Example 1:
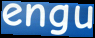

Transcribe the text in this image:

engu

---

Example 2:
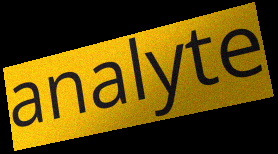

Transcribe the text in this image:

analyte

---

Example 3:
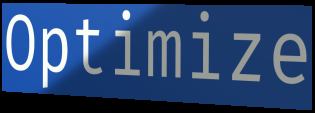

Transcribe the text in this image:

Optimize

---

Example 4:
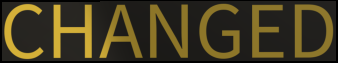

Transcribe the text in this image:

CHANGED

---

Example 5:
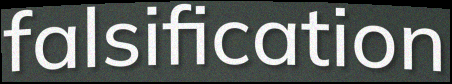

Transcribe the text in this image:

falsification